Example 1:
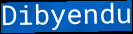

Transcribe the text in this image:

Dibyendu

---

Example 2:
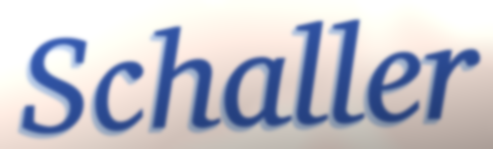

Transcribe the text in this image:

Schaller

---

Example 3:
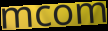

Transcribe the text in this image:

mcom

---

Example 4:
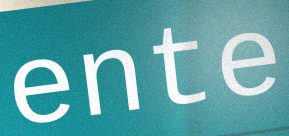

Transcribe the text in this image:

ente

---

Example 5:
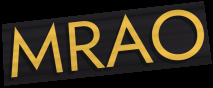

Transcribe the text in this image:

MRAO